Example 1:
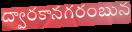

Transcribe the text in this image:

ద్వారకానగరంబున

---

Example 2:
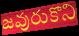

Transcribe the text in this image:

జవురుకొని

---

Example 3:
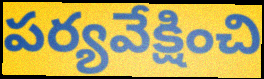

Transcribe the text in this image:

పర్యవేక్షించి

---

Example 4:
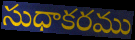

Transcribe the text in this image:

సుధాకరము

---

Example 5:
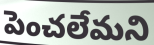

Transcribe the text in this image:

పెంచలేమని